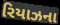
રિયાઝના